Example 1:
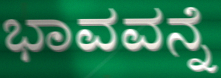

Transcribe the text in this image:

ಭಾವವನ್ನೆ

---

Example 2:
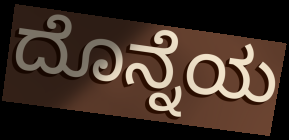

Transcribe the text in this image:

ದೊನ್ನೆಯ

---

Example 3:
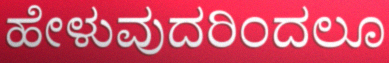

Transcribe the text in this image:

ಹೇಳುವುದರಿಂದಲೂ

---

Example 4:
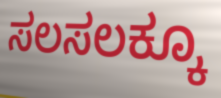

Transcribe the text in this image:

ಸಲಸಲಕ್ಕೂ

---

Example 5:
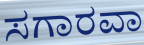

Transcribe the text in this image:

ಸಗಾರವಾ